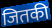
जितकी